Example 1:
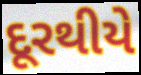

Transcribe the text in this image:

દૂરથીયે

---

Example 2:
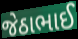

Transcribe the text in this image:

જેઠાભાઈ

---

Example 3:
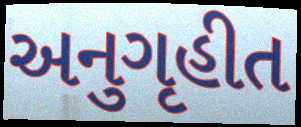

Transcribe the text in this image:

અનુગૃહીત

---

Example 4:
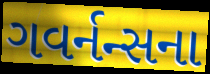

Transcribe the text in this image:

ગવર્નન્સના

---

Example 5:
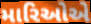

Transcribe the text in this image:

મારિઓએ